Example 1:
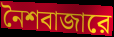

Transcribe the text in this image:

নৈশবাজারে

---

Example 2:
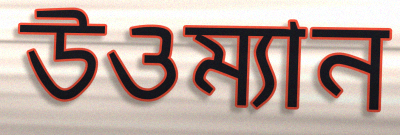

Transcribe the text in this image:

উওম্যান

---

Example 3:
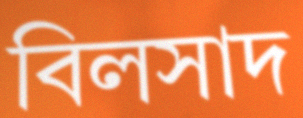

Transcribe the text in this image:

বিলসাদ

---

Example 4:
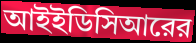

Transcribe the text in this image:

আইইডিসিআরের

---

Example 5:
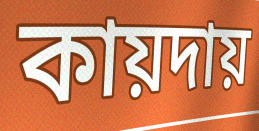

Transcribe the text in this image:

কায়দায়